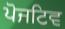
ਪੋਜਟਿਵ